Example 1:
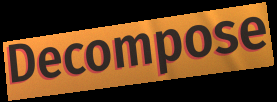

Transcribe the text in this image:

Decompose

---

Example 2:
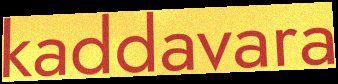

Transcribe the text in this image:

kaddavara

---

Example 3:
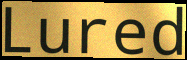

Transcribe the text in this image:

Lured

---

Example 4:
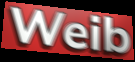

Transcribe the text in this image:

Weib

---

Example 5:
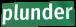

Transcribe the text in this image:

plunder